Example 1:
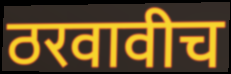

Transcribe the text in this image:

ठरवावीच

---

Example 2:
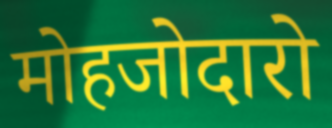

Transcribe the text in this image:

मोहजोदारो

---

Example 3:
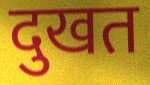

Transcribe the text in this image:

दुखत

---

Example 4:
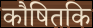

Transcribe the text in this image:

कौषितकि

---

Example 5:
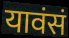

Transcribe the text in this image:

यावंसं